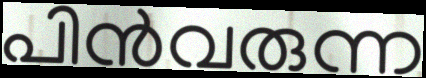
പിൻവരുന്ന